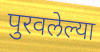
पुरवलेल्या